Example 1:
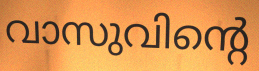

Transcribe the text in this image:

വാസുവിന്റെ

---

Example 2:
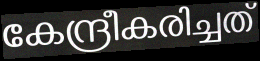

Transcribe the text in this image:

കേന്ദ്രീകരിച്ചത്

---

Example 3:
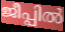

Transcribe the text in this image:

ജീപ്പിൽ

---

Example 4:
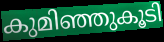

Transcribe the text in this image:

കുമിഞ്ഞുകൂടി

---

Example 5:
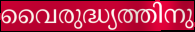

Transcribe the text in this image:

വൈരുദ്ധ്യത്തിനു